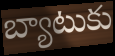
బ్యాటుకు